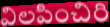
విలపించిరి